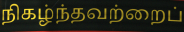
நிகழ்ந்தவற்றைப்